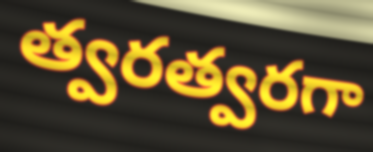
త్వరత్వరగా